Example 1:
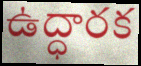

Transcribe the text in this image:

ఉద్ధారక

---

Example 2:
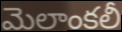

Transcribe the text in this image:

మెలాంకలీ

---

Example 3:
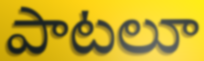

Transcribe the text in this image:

పాటలూ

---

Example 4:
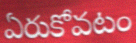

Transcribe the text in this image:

ఏరుకోవటం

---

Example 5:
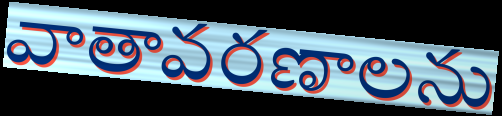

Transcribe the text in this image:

వాతావరణాలను